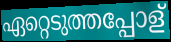
ഏറ്റെടുത്തപ്പോള്